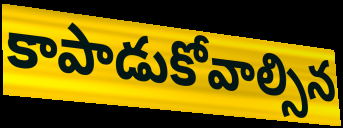
కాపాడుకోవాల్సిన